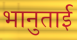
भानुताई